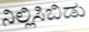
ನಿಲ್ಲಿಸಿಬಿಡು